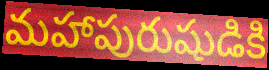
మహాపురుషుడికి